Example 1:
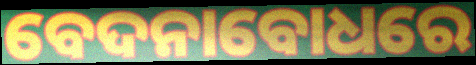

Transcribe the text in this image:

ବେଦନାବୋଧରେ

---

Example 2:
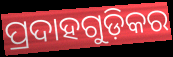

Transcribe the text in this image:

ପ୍ରଦାହଗୁଡ଼ିକର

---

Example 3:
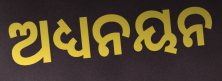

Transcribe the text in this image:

ଅଧ୍ୟନୟନ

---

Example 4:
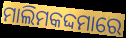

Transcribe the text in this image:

ମାଲିମକଦ୍ଦମାରେ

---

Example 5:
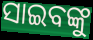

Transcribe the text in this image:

ସାଇବଙ୍କୁ